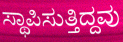
ಸ್ಥಾಪಿಸುತ್ತಿದ್ದವು